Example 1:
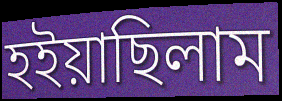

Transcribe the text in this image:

হইয়াছিলাম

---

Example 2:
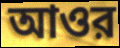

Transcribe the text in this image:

আওর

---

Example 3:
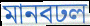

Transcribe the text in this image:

মানবঢল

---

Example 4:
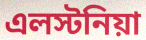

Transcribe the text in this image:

এলস্টনিয়া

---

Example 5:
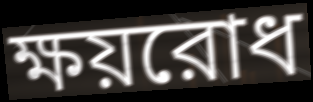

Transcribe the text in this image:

ক্ষয়রোধ